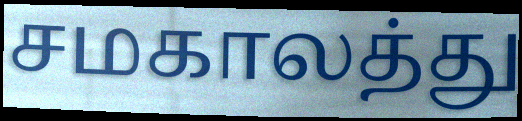
சமகாலத்து